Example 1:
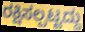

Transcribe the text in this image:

ರಕ್ಷಿಸಲ್ಪಟ್ಟದ್ದು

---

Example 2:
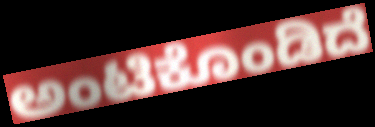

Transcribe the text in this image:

ಅಂಟಿಕೊಂಡಿದೆ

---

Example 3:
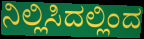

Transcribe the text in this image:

ನಿಲ್ಲಿಸಿದಲ್ಲಿಂದ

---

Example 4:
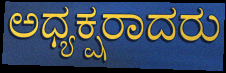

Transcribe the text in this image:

ಅಧ್ಯಕ್ಷರಾದರು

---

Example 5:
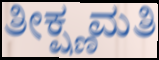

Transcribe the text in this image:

ತೀಕ್ಷ್ಣಮತಿ